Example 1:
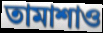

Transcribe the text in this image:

তামাশাও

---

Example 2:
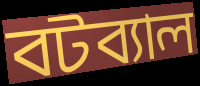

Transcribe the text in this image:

বটব্যাল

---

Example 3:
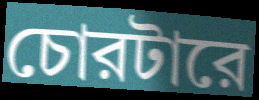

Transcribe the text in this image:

চোরটারে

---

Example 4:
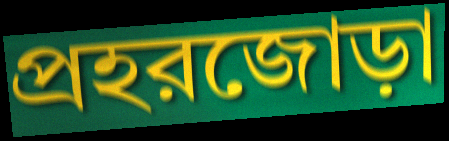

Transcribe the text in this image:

প্রহরজোড়া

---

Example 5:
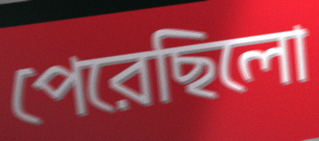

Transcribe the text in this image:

পেরেছিলো